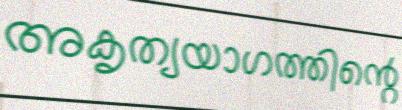
അകൃത്യയാഗത്തിന്റെ